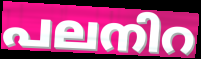
പലനിറ